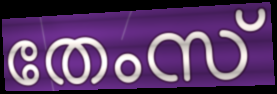
തേംസ്